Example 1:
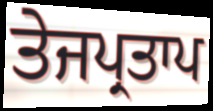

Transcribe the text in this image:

ਤੇਜਪ੍ਰਤਾਪ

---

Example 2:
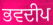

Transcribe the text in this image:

ਭਵਦੀਪ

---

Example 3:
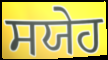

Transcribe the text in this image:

ਸਯੇਹ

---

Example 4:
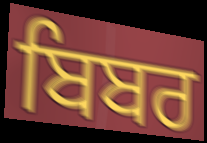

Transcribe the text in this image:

ਬਿਬਰ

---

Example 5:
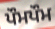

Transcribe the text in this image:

ਪੌਮਪੌਮ